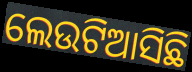
ଲେଉଟିଆସିଛି